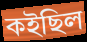
কইছিল